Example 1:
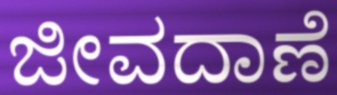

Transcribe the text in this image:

ಜೀವದಾಣೆ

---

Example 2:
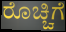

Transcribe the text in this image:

ರೊಚ್ಚಿಗೆ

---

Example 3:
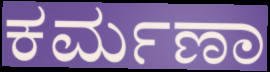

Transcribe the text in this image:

ಕರ್ಮಣಾ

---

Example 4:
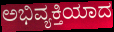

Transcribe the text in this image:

ಅಭಿವ್ಯಕ್ತಿಯಾದ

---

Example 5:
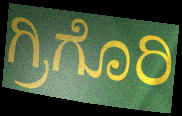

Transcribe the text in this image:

ಗ್ರಿಗೊರಿ